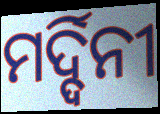
ମର୍ଦ୍ଦିନୀ